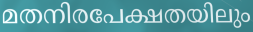
മതനിരപേക്ഷതയിലും